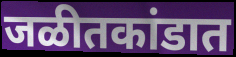
जळीतकांडात